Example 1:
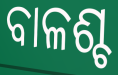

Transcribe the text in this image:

ବାଳଶ୍ଚ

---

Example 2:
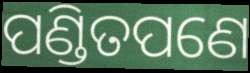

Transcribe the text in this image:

ପଣ୍ଡିତପଣେ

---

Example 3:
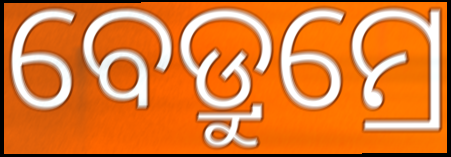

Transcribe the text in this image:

ବେଡ୍ରୁମ୍ରେ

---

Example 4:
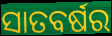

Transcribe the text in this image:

ସାତବର୍ଷର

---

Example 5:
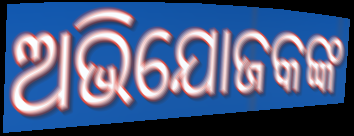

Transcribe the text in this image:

ଅଭିଯୋଜକଙ୍କ